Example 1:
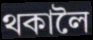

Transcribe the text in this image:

থকালৈ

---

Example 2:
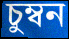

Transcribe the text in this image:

চুম্বন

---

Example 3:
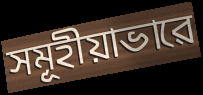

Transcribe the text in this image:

সমূহীয়াভাৱে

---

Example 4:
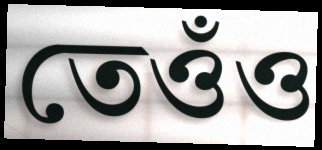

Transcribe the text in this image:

তেওঁও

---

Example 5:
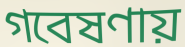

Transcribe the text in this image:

গবেষণায়